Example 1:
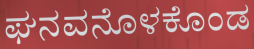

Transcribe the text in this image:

ಘನವನೊಳಕೊಂಡ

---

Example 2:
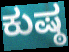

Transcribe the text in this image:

ಕುಷ್ಠ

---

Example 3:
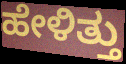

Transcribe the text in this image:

ಹೇಳಿತ್ತು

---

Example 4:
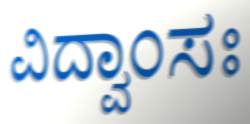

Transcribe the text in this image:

ವಿದ್ವಾಂಸಃ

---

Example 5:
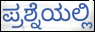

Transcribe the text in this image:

ಪ್ರಶ್ನೆಯಲ್ಲಿ